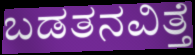
ಬಡತನವಿತ್ತೆ